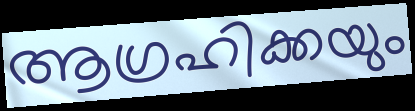
ആഗ്രഹിക്കയും